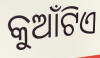
କୁଆଁଟିଏ